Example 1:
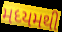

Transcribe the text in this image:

મધ્યમથી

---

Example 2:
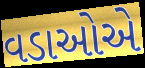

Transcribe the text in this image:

વડાઓએ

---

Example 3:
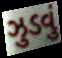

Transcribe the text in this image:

ઝુડવું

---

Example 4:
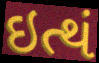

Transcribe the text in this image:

ઇત્થં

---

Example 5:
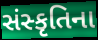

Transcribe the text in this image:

સંસ્કૃતિના